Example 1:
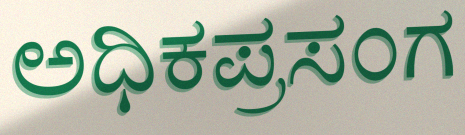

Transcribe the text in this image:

ಅಧಿಕಪ್ರಸಂಗ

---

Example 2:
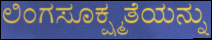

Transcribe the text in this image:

ಲಿಂಗಸೂಕ್ಷ್ಮತೆಯನ್ನು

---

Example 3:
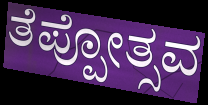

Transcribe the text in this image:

ತೆಪ್ಪೋತ್ಸವ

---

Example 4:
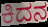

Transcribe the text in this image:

ಕಿದನ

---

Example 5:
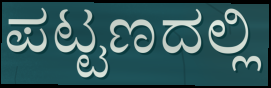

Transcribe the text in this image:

ಪಟ್ಟಣದಲ್ಲಿ